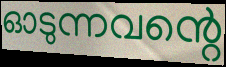
ഓടുന്നവന്റെ